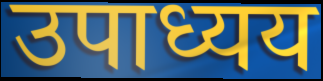
उपाध्यय